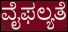
ವೈಫಲ್ಯತೆ